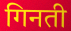
गिनती